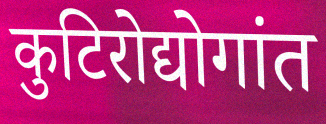
कुटिरोद्योगांत